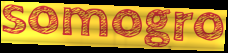
somogro